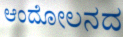
ಆಂದೋಲನದ